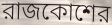
রাজকোশের